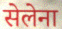
सेलेना